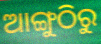
ଆଙ୍ଗୁଠିରୁ